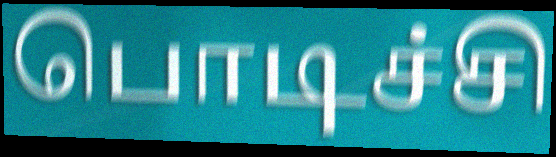
பொடிச்சி